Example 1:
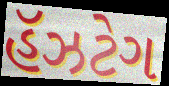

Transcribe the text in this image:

હૅઝટેગ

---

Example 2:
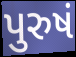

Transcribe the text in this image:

પુરુષં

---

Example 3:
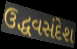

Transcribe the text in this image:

ઉદ્ધવસંદેશ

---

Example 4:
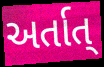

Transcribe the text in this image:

અર્તાત્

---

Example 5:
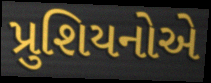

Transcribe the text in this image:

પ્રુશિયનોએ